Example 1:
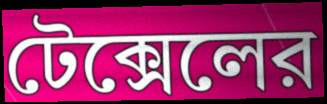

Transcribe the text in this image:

টেক্সেলের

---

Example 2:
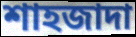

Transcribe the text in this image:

শাহজাদা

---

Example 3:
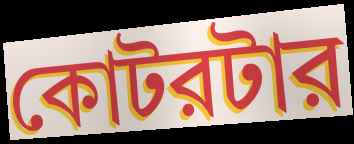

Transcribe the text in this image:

কোটরটার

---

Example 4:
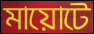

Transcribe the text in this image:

মায়োটে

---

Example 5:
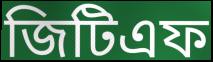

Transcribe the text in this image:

জিটিএফ